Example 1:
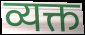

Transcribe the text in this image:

व्यक्त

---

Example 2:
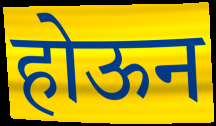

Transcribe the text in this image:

होऊन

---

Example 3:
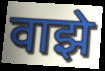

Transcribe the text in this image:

वाझे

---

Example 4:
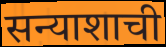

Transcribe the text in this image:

सन्याशाची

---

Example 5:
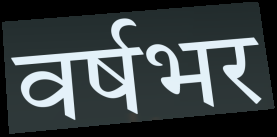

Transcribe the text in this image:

वर्षभर